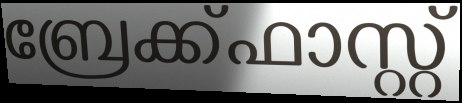
ബ്രേക്ക്ഫാസ്റ്റ്